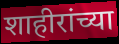
शाहीरांच्या